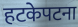
हटकेपटना